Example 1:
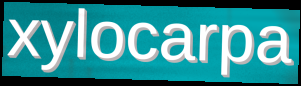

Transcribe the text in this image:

xylocarpa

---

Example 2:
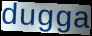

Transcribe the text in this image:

dugga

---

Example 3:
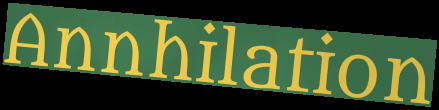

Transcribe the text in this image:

Annhilation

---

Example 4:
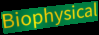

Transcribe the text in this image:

Biophysical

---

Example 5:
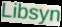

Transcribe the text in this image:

Libsyn